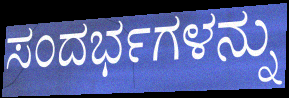
ಸಂದರ್ಭಗಳನ್ನು